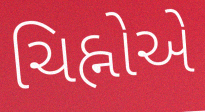
ચિહ્નોએ